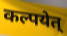
कल्पयेत्